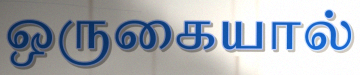
ஒருகையால்